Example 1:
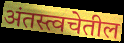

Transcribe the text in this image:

अंतस्त्वचेतील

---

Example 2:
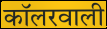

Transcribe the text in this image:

कॉलरवाली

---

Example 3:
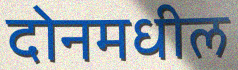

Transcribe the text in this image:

दोनमधील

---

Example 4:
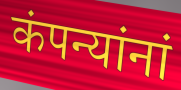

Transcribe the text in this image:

कंपन्यांनां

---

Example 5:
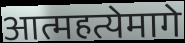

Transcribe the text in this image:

आत्महत्येमागे